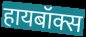
हायबॉक्स